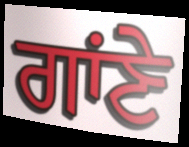
ਗਾਂਣੇ